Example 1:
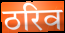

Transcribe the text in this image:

ठरिव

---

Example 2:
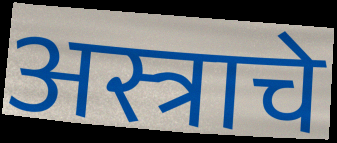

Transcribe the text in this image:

अस्त्राचे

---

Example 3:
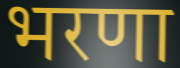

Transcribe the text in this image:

भरणा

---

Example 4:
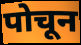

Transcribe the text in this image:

पोचून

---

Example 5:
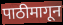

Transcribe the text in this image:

पाठीमागून